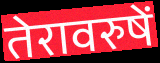
तेरावरुषें